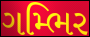
ગમ્ભિર